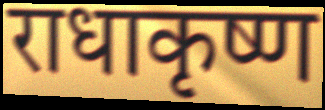
राधाकृष्ण